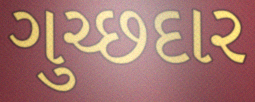
ગુચ્છદાર